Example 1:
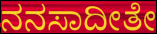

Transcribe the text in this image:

ನನಸಾದೀತೇ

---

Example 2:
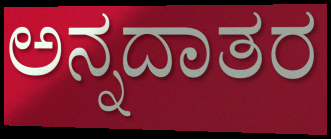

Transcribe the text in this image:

ಅನ್ನದಾತರ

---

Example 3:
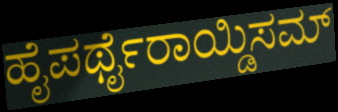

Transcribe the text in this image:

ಹೈಪರ್ಥೈರಾಯ್ಡಿಸಮ್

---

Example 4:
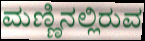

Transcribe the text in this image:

ಮಣ್ಣಿನಲ್ಲಿರುವ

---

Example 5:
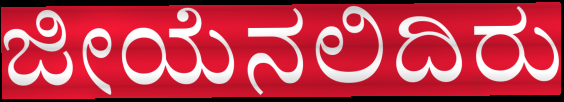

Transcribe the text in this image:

ಜೀಯೆನಲಿದಿರು